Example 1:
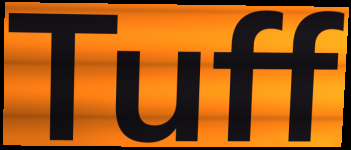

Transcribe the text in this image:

Tuff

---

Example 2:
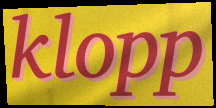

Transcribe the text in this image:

klopp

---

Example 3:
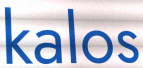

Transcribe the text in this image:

kalos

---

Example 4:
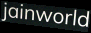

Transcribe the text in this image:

jainworld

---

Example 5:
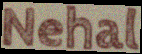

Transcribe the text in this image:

Nehal